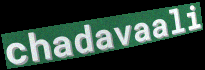
chadavaali